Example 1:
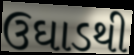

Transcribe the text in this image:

ઉઘાડથી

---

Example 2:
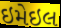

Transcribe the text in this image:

ઇમેઇલ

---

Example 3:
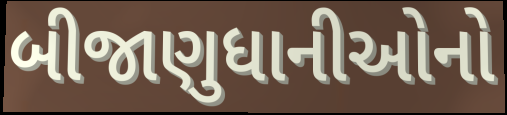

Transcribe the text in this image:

બીજાણુધાનીઓનો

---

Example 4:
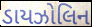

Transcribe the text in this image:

ડાયઝોલિન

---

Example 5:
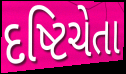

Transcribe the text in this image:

દષ્ટિચેતા